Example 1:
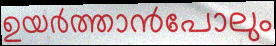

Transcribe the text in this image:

ഉയർത്താൻപോലും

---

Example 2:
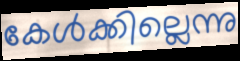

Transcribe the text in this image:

കേൾക്കില്ലെന്നു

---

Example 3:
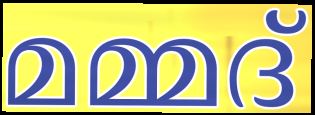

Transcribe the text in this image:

മമ്മദ്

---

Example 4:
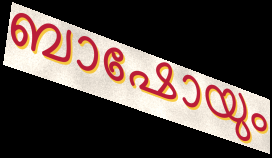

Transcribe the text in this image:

ബാഷോയും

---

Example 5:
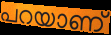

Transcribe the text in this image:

പറയാണ്